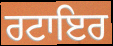
ਰਟਾਇਰ